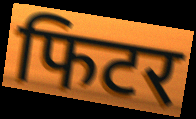
फिटर